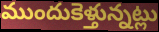
ముందుకెళ్తున్నట్లు